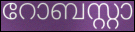
റോബസ്റ്റാ